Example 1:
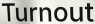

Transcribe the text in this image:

Turnout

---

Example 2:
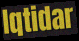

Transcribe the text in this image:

Iqtidar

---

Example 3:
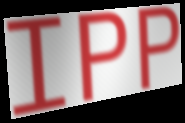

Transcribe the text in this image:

IPP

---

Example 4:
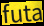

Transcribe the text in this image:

futa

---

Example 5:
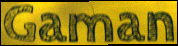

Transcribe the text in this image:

Gaman